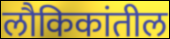
लौकिकांतील